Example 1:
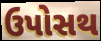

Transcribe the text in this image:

ઉપોસથ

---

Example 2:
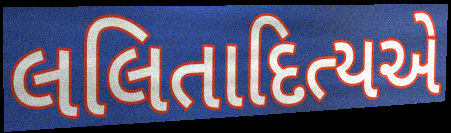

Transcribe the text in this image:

લલિતાદિત્યએ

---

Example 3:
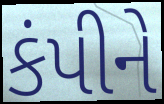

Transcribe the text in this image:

કંપીને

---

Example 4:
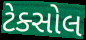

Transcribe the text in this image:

ટેક્સોલ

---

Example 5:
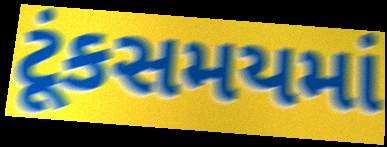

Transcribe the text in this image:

ટૂંકસમયમાં